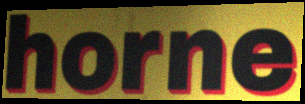
horne